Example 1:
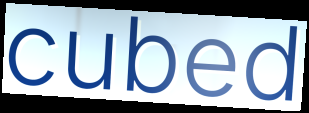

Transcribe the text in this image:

cubed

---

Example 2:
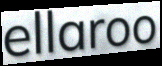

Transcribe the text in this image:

ellaroo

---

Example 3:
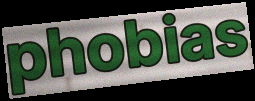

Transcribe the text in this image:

phobias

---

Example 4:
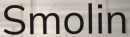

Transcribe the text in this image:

Smolin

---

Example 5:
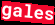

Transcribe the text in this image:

gales